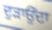
ਦੁੜਾਉਂਦਾ